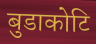
बुडाकोटि